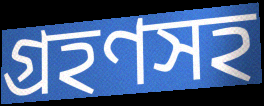
গ্রহণসহ